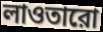
লাওতারো